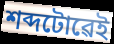
শব্দটোৱেই